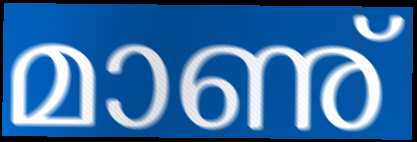
മാണു്